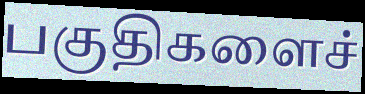
பகுதிகளைச்